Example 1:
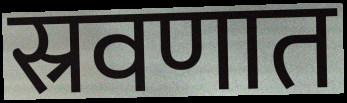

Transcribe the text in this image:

स्रवणात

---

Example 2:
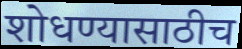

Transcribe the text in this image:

शोधण्यासाठीच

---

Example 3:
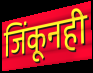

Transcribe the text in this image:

जिंकूनही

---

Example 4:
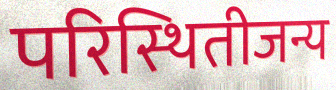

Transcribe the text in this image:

परिस्थितीजन्य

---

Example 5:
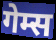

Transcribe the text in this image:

गेम्स